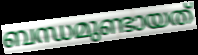
ബന്ധമുണ്ടായത്